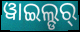
ୱାଇଲ୍ଡର୍